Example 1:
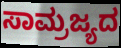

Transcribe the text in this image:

ಸಾಮ್ರಜ್ಯದ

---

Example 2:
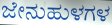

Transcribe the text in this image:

ಜೇನುಹುಳಗಳ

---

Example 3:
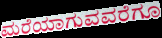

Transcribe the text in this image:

ಮರೆಯಾಗುವವರೆಗೂ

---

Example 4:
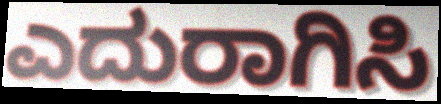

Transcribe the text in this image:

ಎದುರಾಗಿಸಿ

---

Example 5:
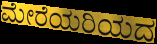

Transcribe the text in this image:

ಮೇರೆಯರಿಯದ